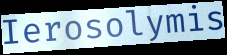
Ierosolymis